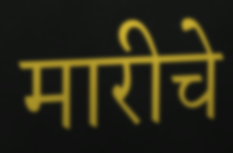
मारीचे